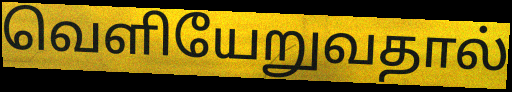
வெளியேறுவதால்